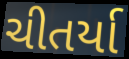
ચીતર્યા